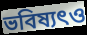
ভবিষ্যৎও